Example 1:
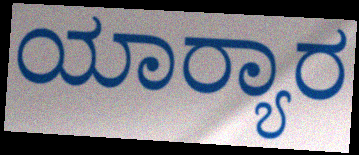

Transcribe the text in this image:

ಯಾರ‍್ಯಾರ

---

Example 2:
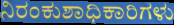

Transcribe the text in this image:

ನಿರಂಕುಶಾಧಿಕಾರಿಗಳು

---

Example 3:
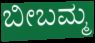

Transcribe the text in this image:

ಬೀಬಮ್ಮ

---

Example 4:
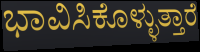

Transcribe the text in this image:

ಭಾವಿಸಿಕೊಳ್ಳುತ್ತಾರೆ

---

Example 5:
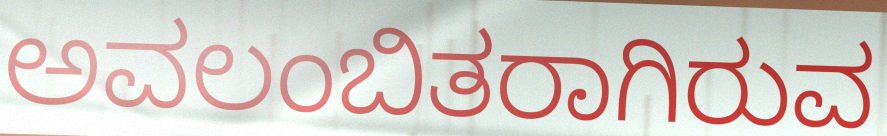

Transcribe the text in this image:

ಅವಲಂಬಿತರಾಗಿರುವ